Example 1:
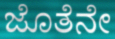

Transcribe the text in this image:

ಜೊತೆನೇ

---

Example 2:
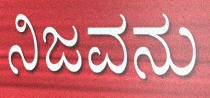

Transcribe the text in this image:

ನಿಜವನು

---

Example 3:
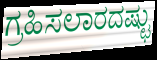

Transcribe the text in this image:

ಗ್ರಹಿಸಲಾರದಷ್ಟು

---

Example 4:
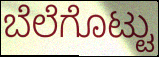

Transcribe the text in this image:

ಬೆಲೆಗೊಟ್ಟು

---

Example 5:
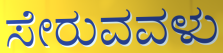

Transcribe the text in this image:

ಸೇರುವವಳು